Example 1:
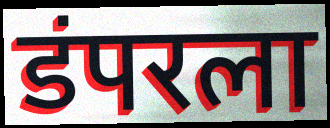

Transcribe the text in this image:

डंपरला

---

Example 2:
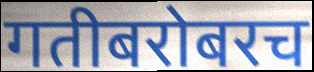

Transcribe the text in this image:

गतीबरोबरच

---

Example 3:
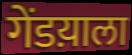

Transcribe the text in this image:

गेंडय़ाला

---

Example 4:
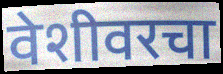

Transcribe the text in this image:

वेशीवरचा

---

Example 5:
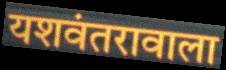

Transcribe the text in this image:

यशवंतरावाला